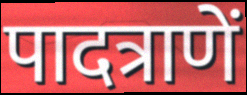
पादत्राणें